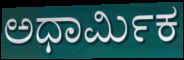
ಅಧಾರ್ಮಿಕ